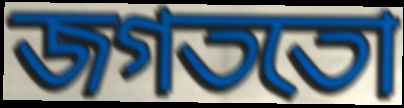
জগততো